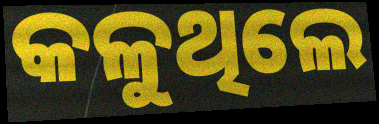
କଳୁଥିଲେ